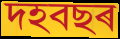
দহবছৰ